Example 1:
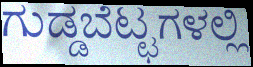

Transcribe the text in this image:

ಗುಡ್ಡಬೆಟ್ಟಗಳಲ್ಲಿ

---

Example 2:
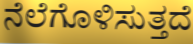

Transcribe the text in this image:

ನೆಲೆಗೊಳಿಸುತ್ತದೆ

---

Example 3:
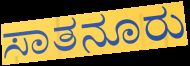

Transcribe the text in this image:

ಸಾತನೂರು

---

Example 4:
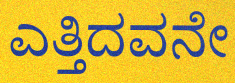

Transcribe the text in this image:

ಎತ್ತಿದವನೇ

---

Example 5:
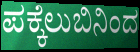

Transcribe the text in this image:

ಪಕ್ಕೆಲುಬಿನಿಂದ